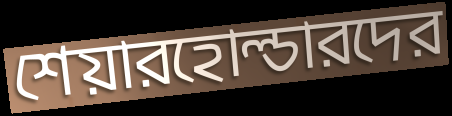
শেয়ারহোল্ডারদের